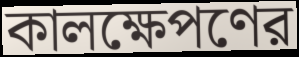
কালক্ষেপণের